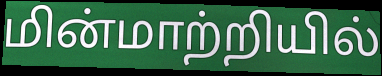
மின்மாற்றியில்